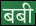
बबी